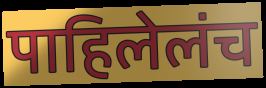
पाहिलेलंच